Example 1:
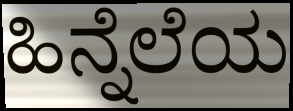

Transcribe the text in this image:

ಹಿನ್ನೆಲೆಯ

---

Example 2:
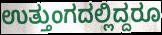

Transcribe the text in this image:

ಉತ್ತುಂಗದಲ್ಲಿದ್ದರೂ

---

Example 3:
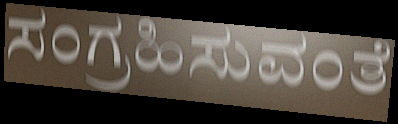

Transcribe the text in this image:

ಸಂಗ್ರಹಿಸುವಂತೆ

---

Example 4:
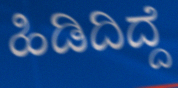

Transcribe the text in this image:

ಹಿಡಿದಿದ್ದೆ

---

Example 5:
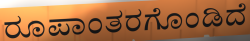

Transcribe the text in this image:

ರೂಪಾಂತರಗೊಂಡಿದೆ